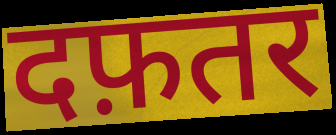
दफ़तर